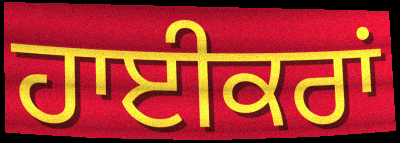
ਹਾਈਕਰਾਂ